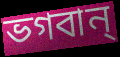
ভগবান্